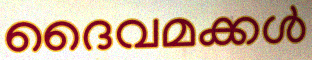
ദൈവമക്കൾ